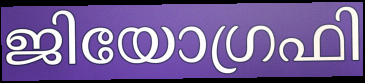
ജിയോഗ്രഫി